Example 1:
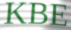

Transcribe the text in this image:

KBE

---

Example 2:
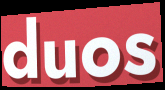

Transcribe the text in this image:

duos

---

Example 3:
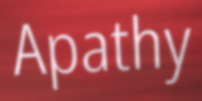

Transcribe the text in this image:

Apathy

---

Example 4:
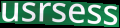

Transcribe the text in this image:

usrsess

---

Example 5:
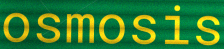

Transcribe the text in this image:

osmosis